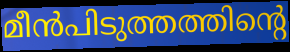
മീൻപിടുത്തത്തിന്റെ